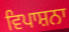
ਵਿਪਾਸ਼ਨਾ